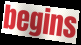
begins